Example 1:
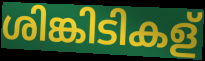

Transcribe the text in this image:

ശിങ്കിടികള്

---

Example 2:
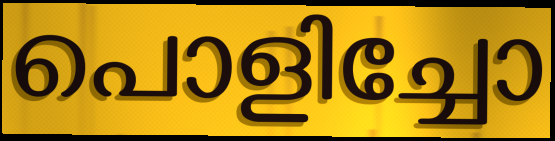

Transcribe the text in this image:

പൊളിച്ചോ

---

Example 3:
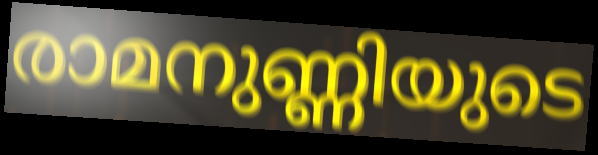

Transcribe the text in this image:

രാമനുണ്ണിയുടെ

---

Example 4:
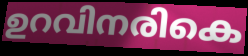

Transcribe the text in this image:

ഉറവിനരികെ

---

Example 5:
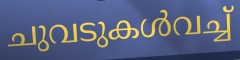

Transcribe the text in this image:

ചുവടുകൾവച്ച്